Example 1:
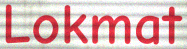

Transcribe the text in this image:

Lokmat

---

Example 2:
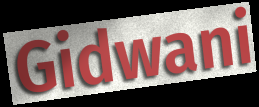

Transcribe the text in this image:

Gidwani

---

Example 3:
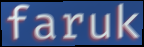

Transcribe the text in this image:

faruk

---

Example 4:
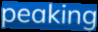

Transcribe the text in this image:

peaking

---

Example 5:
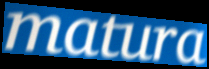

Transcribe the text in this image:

matura